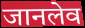
जानलेव